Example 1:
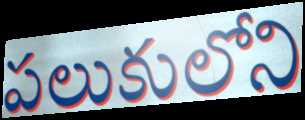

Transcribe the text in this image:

పలుకులోని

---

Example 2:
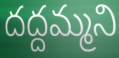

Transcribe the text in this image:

దద్దమ్మని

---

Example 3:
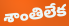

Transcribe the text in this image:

శాంతిలేక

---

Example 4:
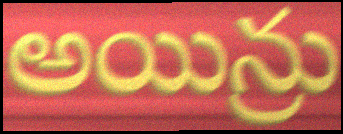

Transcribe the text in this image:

అయిన్రు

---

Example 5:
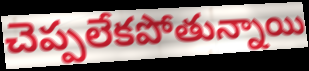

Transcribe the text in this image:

చెప్పలేకపోతున్నాయి